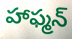
హాఫ్మన్